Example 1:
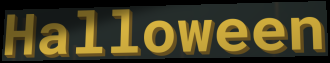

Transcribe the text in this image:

Halloween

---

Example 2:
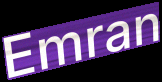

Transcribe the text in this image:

Emran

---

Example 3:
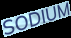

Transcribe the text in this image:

SODIUM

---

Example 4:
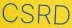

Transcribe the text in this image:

CSRD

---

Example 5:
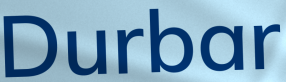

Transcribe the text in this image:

Durbar